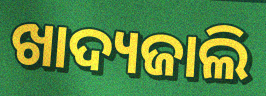
ଖାଦ୍ୟଜାଲି